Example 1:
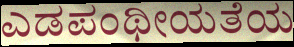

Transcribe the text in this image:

ಎಡಪಂಥೀಯತೆಯ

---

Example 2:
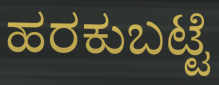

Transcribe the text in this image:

ಹರಕುಬಟ್ಟೆ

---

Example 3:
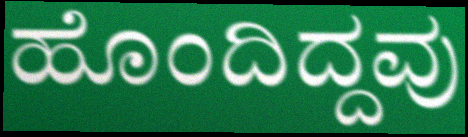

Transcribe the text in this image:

ಹೊಂದಿದ್ದವು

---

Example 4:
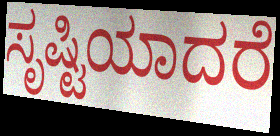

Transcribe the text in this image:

ಸೃಷ್ಟಿಯಾದರೆ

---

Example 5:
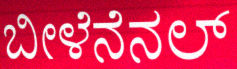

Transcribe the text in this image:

ಬೀಳೆನೆನಲ್